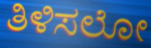
ತಿಳಿಸಲೋ